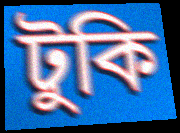
টুকি